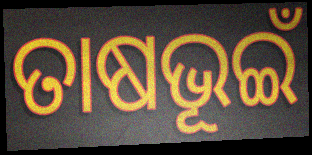
ତାଷଭୂଇଁ